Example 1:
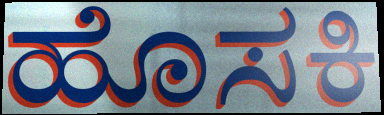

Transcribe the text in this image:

ಹೊಸಕಿ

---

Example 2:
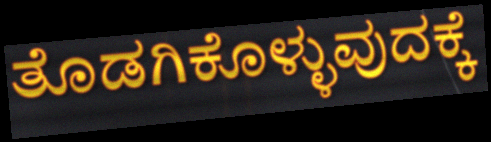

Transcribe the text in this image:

ತೊಡಗಿಕೊಳ್ಳುವುದಕ್ಕೆ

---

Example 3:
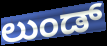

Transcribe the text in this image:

ಲುಂಡ್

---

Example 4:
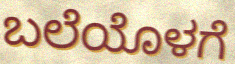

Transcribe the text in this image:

ಬಲೆಯೊಳಗೆ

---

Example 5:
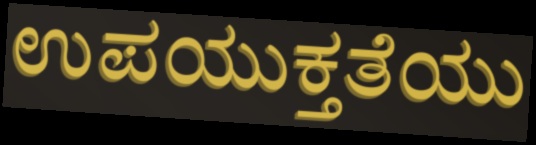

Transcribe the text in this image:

ಉಪಯುಕ್ತತೆಯು